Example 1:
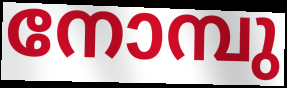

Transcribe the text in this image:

നോമ്പു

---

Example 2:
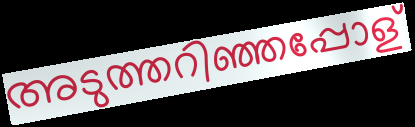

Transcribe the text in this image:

അടുത്തറിഞ്ഞപ്പോള്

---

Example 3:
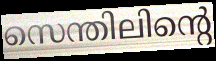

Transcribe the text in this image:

സെന്തിലിന്റെ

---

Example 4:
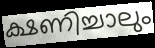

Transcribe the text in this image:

ക്ഷണിച്ചാലും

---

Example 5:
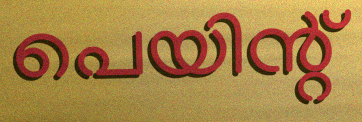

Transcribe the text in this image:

പെയിന്റ്